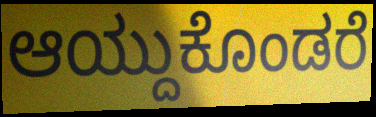
ಆಯ್ದುಕೊಂಡರೆ